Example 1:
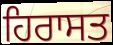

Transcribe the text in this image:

ਹਿਰਾਸਤ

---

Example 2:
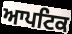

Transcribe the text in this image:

ਆਪਟਿਕ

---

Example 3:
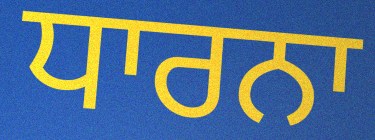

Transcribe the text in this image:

ਧਾਰਨਾ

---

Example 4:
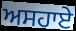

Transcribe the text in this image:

ਅਸਹਾਏ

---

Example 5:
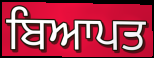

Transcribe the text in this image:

ਬਿਆਪਤ